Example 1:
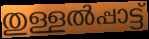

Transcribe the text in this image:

തുള്ളൽപ്പാട്ട്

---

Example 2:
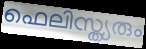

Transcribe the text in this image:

ഫെലിസ്ത്യരും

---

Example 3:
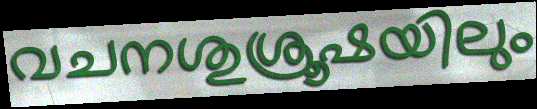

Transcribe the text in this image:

വചനശുശ്രൂഷയിലും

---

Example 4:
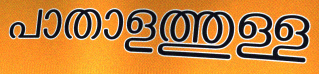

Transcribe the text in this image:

പാതാളത്തുള്ള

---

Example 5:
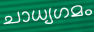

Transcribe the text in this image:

ചാധ്യഗമം